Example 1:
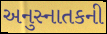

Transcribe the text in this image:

અનુસ્નાતકની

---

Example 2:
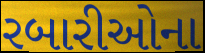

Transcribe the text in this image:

રબારીઓના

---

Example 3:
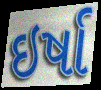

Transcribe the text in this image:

ઇર્ષા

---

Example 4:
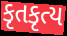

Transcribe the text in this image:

કૃતકૃત્ય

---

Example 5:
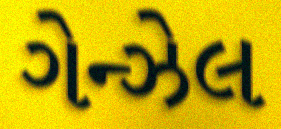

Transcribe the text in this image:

ગેન્ઝેલ